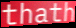
thath